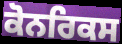
ਕੋਨਰਿਕਸ